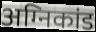
अग्‍निकांड